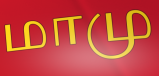
மாமு